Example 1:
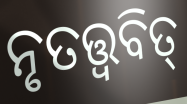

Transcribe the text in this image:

ନୃତତ୍ତ୍ୱବିତ୍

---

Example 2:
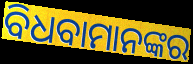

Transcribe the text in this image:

ବିଧବାମାନଙ୍କର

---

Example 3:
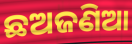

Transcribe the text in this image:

ଛଅଜଣିଆ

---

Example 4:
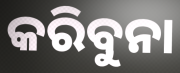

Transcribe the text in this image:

କରିବୁନା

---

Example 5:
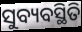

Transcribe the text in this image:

ସୁବ୍ୟବସ୍ଥିତି